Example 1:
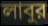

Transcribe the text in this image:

লাবুর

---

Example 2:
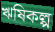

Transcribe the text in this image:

ঋষিকল্প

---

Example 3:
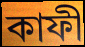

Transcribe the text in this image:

কাফী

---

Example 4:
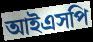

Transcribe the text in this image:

আইএসপি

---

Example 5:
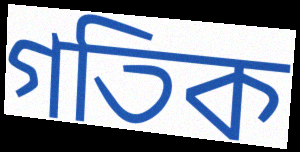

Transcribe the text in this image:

গতিক